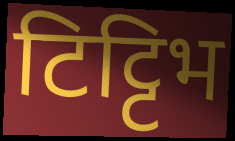
टिट्टिभ